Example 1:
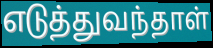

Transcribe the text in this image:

எடுத்துவந்தாள்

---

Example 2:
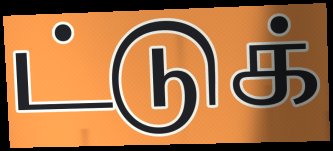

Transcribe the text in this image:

ட்டுக்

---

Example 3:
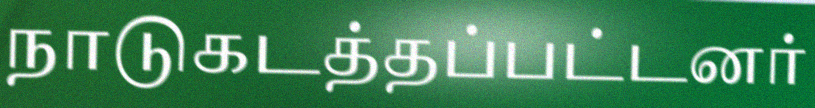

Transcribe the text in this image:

நாடுகடத்தப்பட்டனர்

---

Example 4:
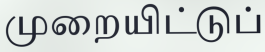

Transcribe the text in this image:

முறையிட்டுப்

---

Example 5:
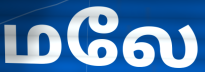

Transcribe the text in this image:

மலே